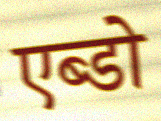
एब्डो